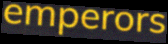
emperors